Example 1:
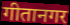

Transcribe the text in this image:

गीतानगर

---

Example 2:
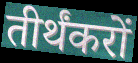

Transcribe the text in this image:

तीर्थंकरों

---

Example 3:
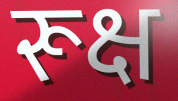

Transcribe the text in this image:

रूक्ष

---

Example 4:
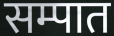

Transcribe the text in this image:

सम्पात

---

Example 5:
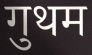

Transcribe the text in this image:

गुथम